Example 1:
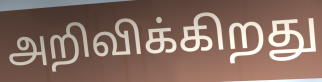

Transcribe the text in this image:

அறிவிக்கிறது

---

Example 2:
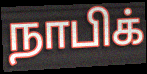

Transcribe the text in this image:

நாபிக்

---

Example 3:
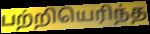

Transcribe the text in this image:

பற்றியெரிந்த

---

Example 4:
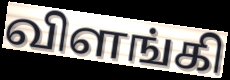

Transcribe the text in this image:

விளங்கி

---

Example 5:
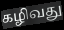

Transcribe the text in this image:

கழிவது